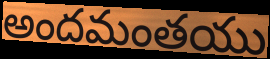
అందమంతయు